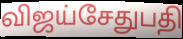
விஜய்சேதுபதி